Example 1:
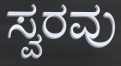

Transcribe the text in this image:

ಸ್ವರವು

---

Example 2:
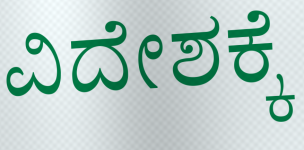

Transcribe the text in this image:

ವಿದೇಶಕ್ಕೆ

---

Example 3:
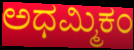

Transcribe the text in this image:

ಅಧಮ್ಮಿಕಂ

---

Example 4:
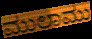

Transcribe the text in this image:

ಮುಲಾಮು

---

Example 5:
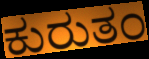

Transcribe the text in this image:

ಕುರುತಂ